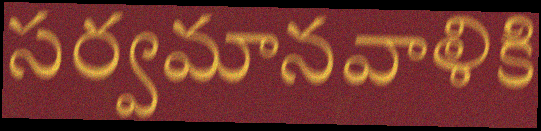
సర్వమానవాళికి